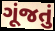
ગૂંજતું